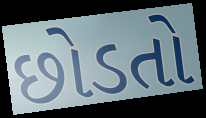
છોડતો